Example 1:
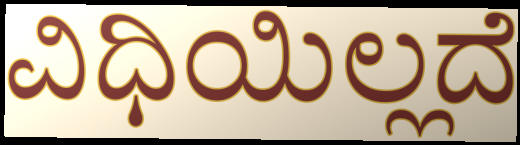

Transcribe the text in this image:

ವಿಧಿಯಿಲ್ಲದೆ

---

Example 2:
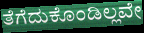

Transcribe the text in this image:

ತೆಗೆದುಕೊಂಡಿಲ್ಲವೇ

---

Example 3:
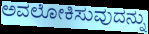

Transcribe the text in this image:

ಅವಲೋಕಿಸುವುದನ್ನು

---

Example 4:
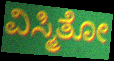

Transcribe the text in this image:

ವಿಸ್ಮಿತೋ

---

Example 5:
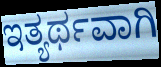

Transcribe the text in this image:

ಇತ್ಯರ್ಥವಾಗಿ